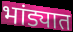
भांड्यात